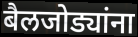
बैलजोड्यांना